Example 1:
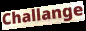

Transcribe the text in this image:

Challange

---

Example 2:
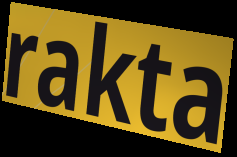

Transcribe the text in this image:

rakta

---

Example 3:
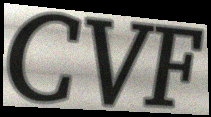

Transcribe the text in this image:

CVF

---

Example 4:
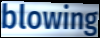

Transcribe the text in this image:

blowing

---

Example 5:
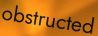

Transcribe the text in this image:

obstructed